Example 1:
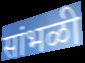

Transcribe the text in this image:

सांभळी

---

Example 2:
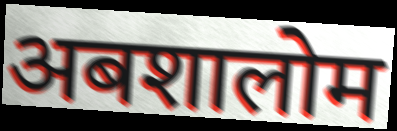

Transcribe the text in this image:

अबशालोम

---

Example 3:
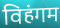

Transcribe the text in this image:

विहंगम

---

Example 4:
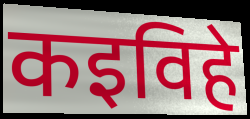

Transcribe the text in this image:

कइविहे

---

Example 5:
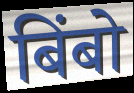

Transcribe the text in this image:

बिंबो